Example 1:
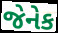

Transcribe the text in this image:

જેનેક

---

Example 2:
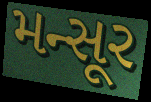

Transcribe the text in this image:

મન્સૂર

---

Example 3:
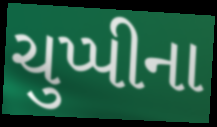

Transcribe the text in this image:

ચુપ્પીના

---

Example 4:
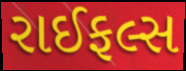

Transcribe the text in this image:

રાઈફલ્સ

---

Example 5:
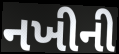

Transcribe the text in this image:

નખીની